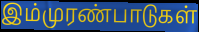
இம்முரண்பாடுகள்